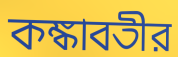
কঙ্কাবতীর